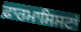
ਫ਼ਾਰਮਾਸਿਸਟਾਂ